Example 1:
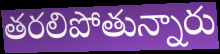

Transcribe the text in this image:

తరలిపోతున్నారు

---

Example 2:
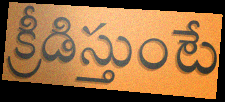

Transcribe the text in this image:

క్రీడిస్తుంటే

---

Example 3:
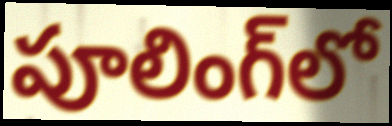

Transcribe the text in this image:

పూలింగ్‌లో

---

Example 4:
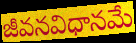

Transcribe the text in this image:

జీవనవిధానమే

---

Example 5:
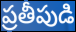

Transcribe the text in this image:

ప్రతీపుడి